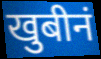
खुबीनं